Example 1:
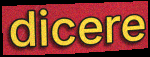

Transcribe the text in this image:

dicere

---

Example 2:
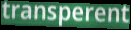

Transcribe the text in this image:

transperent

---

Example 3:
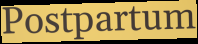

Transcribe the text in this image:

Postpartum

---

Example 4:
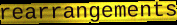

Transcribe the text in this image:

rearrangements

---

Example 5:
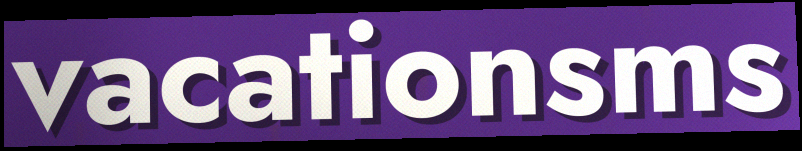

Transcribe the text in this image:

vacationsms